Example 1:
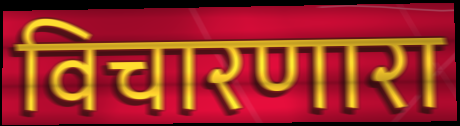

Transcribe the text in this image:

विचारणारा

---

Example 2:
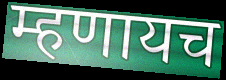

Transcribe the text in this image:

म्हणायच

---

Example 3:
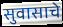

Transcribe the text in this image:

सुवासाचे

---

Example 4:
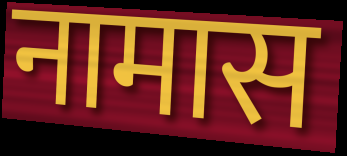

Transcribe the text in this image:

नामास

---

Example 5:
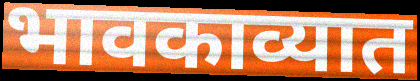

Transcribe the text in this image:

भावकाव्यात